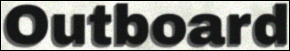
Outboard